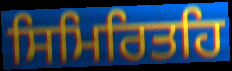
ਸਿਮਿਰਿਤਹਿ